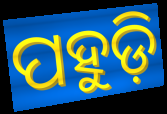
ପହୁଡ଼ି